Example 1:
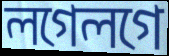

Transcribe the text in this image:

লগেলগে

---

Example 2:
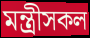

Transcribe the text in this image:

মন্ত্ৰীসকল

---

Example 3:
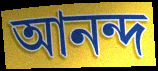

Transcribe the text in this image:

আনন্দ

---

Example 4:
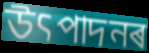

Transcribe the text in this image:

উৎপাদনৰ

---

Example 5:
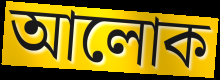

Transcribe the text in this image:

আলোক